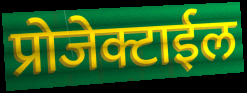
प्रोजेक्टाईल